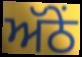
ਅੱਠੇਂ